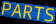
PARTS